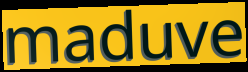
maduve